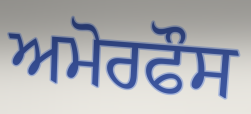
ਅਮੋਰਫੌਸ